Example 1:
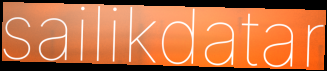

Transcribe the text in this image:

sailikdatar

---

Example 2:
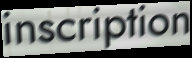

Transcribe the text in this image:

inscription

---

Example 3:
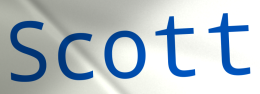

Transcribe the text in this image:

Scott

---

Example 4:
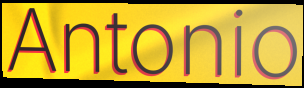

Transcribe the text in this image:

Antonio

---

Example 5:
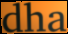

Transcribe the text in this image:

dha